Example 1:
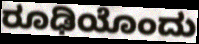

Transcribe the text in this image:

ರೂಢಿಯೊಂದು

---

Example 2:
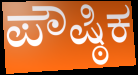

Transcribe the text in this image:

ಪೌಷ್ಠಿಕ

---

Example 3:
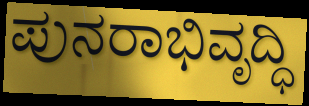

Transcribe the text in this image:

ಪುನರಾಭಿವೃದ್ಧಿ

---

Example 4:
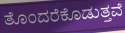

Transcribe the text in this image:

ತೊಂದರೆಕೊಡುತ್ತವೆ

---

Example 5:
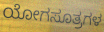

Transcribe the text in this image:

ಯೋಗಸೂತ್ರಗಳ